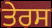
ਤੇਰਸ